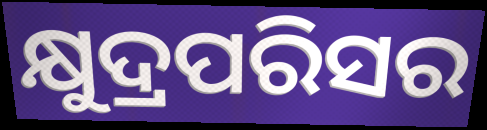
କ୍ଷୁଦ୍ରପରିସର